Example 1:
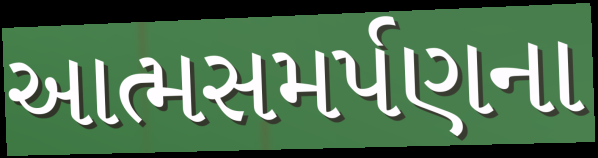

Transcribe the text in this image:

આત્મસમર્પણના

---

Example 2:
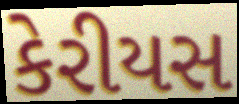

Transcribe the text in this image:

કેરીયસ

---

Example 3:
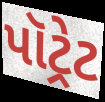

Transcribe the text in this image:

પૉટ્રેટ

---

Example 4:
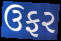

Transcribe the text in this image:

ઉફર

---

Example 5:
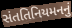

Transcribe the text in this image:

સંતતિનિયમનનું